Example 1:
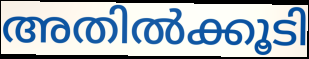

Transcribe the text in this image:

അതിൽക്കൂടി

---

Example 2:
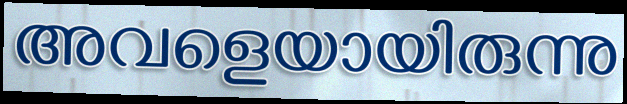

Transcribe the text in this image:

അവളെയായിരുന്നു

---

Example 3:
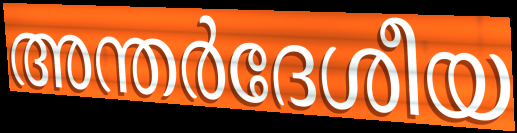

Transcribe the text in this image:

അന്തർദേശീയ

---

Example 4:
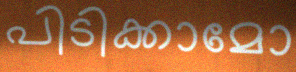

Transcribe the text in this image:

പിടിക്കാമോ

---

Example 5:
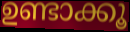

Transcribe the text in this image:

ഉണ്ടാക്കൂ